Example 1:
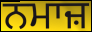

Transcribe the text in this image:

ਨਮਾਜ਼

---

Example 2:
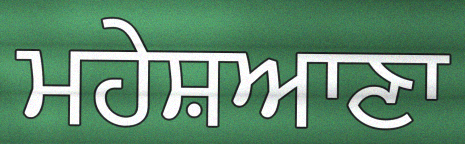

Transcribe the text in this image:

ਮਹੇਸ਼ਆਣਾ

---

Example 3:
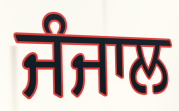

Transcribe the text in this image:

ਜੰਜਾਲ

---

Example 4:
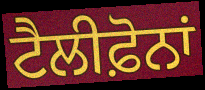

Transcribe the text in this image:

ਟੈਲੀਫ਼ੋਨਾਂ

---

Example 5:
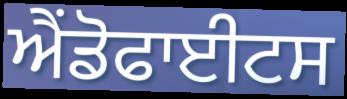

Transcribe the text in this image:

ਐਂਡੋਫਾਈਟਸ